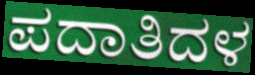
ಪದಾತಿದಳ